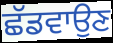
ਛੱਡਵਾਉਣ